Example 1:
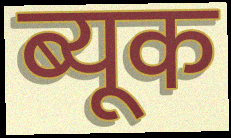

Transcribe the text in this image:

ब्यूक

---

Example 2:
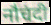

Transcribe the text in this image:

नौचंदी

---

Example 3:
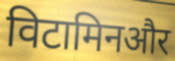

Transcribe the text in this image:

विटामिनऔर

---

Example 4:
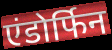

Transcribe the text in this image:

एंडोर्फिन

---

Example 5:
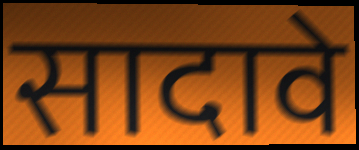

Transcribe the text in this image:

सादावे